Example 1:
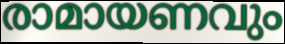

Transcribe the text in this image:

രാമായണവും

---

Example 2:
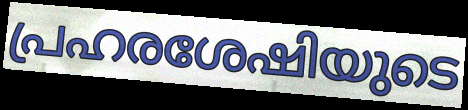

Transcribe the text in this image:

പ്രഹരശേഷിയുടെ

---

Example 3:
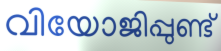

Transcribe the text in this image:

വിയോജിപ്പുണ്ട്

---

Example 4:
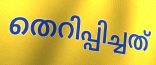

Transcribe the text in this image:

തെറിപ്പിച്ചത്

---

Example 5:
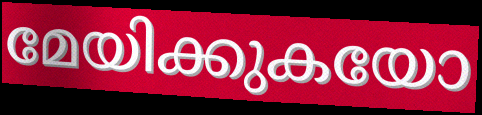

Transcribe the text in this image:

മേയിക്കുകയോ